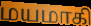
மயமாகி